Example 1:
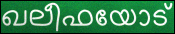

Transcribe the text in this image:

ഖലീഫയോട്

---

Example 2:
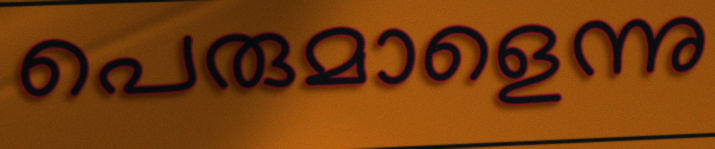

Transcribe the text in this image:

പെരുമാളെന്നു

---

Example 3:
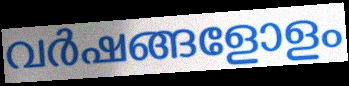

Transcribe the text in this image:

വർഷങ്ങളോളം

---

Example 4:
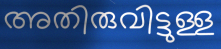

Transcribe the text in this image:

അതിരുവിട്ടുള്ള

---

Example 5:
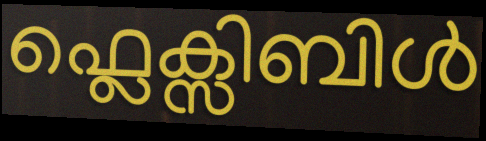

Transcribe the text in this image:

ഫ്ലെക്സിബിൾ